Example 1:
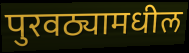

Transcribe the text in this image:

पुरवठ्यामधील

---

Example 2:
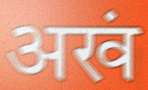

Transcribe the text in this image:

अखं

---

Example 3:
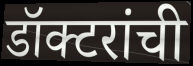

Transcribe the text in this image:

डॉक्टरांची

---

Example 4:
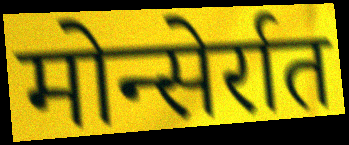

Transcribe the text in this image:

मोन्सेर्रात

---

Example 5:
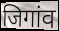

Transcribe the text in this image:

जिगांव